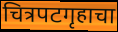
चित्रपटगृहाचा